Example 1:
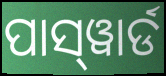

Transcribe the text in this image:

ପାସ୍‌ୱାର୍ଡ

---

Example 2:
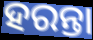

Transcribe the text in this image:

ହରନ୍ତା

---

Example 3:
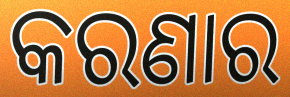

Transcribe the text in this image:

କରଣାର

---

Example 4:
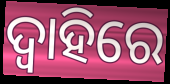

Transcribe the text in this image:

ଦ୍ୱାହିରେ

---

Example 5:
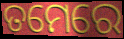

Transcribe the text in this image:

ତମେରେ